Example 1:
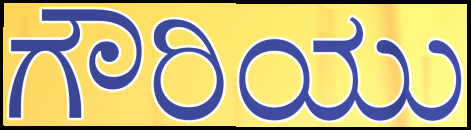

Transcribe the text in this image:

ಗೌರಿಯು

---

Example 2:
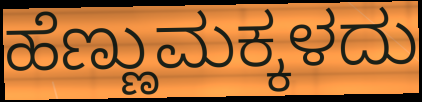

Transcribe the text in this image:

ಹೆಣ್ಣುಮಕ್ಕಳದು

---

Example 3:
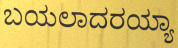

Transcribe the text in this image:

ಬಯಲಾದರಯ್ಯಾ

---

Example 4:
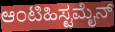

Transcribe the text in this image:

ಆಂಟಿಹಿಸ್ಟಮೈನ್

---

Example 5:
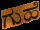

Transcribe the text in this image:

ಗುಹೆ